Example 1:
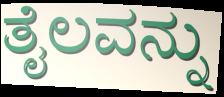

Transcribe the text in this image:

ತೈಲವನ್ನು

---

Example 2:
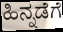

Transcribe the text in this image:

ಹಿನ್ನಡೆಗೆ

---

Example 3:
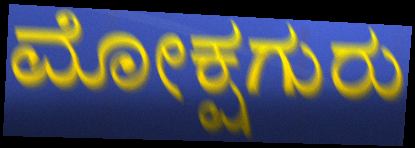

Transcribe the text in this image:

ಮೋಕ್ಷಗುರು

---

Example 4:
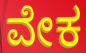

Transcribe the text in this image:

ವೇಕ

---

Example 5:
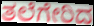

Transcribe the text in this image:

ತಲೆಗೇರಿದ